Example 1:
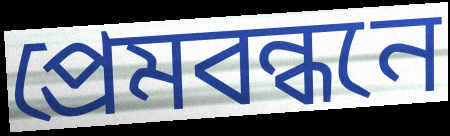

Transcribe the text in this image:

প্রেমবন্ধনে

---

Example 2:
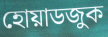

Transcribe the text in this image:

হোয়াডজুক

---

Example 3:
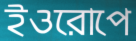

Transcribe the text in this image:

ইওরোপে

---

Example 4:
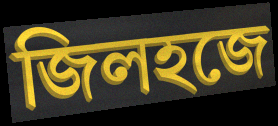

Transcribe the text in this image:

জিলহজে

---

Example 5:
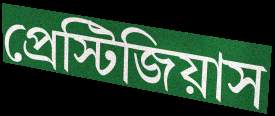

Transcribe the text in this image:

প্রেস্টিজিয়াস